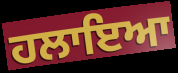
ਹਲਾਇਆ